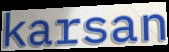
karsan